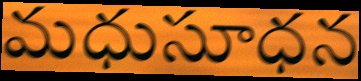
మధుసూధన